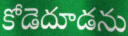
కోడెదూడను